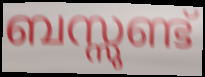
ബസ്സുണ്ട്